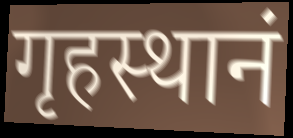
गृहस्थानं